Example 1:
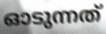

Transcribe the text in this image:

ഓടുന്നത്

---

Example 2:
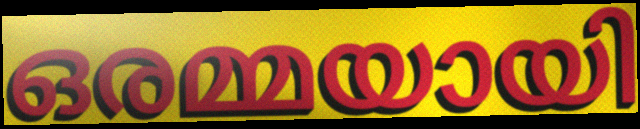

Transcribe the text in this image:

ഒരമ്മയായി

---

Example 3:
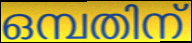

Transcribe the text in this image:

ഒമ്പതിന്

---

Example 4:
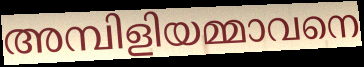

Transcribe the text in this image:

അമ്പിളിയമ്മാവനെ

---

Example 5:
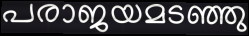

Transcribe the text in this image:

പരാജയമടഞ്ഞു